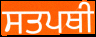
ਸਤਪਥੀ